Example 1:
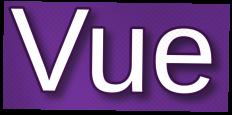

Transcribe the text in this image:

Vue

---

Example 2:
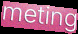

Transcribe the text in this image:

meting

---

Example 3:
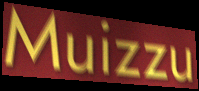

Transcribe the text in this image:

Muizzu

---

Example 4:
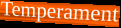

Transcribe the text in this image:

Temperament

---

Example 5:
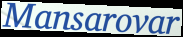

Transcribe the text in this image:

Mansarovar